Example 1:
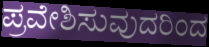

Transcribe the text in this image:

ಪ್ರವೇಶಿಸುವುದರಿಂದ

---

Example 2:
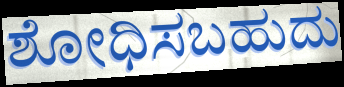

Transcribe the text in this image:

ಶೋಧಿಸಬಹುದು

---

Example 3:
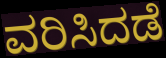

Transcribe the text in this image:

ವರಿಸಿದಡೆ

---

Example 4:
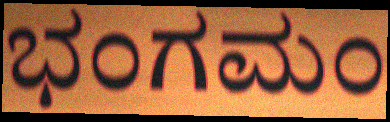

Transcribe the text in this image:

ಭಂಗಮಂ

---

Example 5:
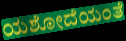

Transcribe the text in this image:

ಯಶೋದೆಯಂತೆ